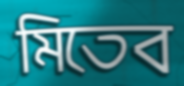
মিতেব